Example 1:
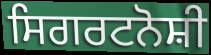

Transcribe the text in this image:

ਸਿਗਰਟਨੋਸ਼ੀ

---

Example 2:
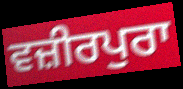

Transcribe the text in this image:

ਵਜ਼ੀਰਪੁਰਾ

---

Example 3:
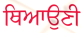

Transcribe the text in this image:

ਥਿਆਉਣੀ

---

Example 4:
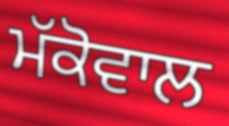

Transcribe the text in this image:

ਮੱਕੋਵਾਲ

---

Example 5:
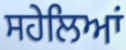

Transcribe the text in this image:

ਸਹੇਲਿਆਂ